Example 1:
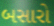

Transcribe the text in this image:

બસારો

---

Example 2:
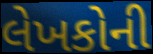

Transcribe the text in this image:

લેખકોની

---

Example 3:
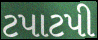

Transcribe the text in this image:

ટપાટપી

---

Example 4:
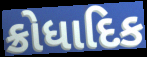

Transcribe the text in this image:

ક્રોધાદિક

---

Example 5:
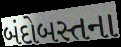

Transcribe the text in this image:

બંદોબસ્તના